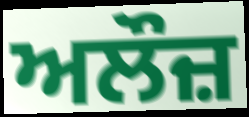
ਅਲੌਜ਼